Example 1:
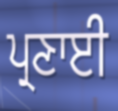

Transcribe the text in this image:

ਪ੍ਰਣਾਈ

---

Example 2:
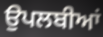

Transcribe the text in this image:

ਉਪਲਬੀਆਂ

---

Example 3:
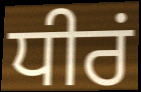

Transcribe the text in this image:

ਧੀਰਂ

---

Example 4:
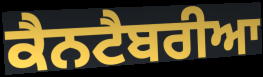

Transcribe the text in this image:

ਕੈਨਟੈਬਰੀਆ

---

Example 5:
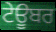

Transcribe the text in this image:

ਟੇਊਬਰ